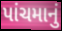
પાંચમાનું